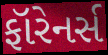
ફૉરેનર્સ